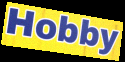
Hobby